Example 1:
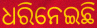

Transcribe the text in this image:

ଧରିନେଇଛି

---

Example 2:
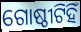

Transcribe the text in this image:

ଗୋଷ୍ଠୀଟିହିଁ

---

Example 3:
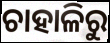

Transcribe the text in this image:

ଚାହାଳିରୁ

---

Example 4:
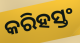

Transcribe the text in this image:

କରିହସ୍ତଂ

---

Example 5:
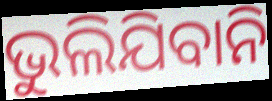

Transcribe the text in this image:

ଭୁଲିଯିବାନି